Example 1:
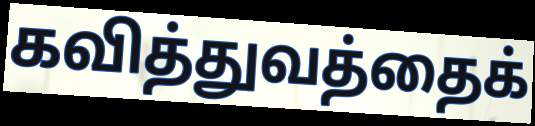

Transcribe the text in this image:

கவித்துவத்தைக்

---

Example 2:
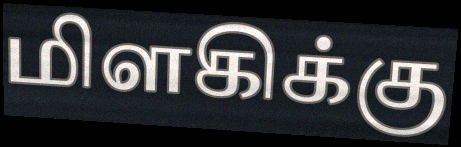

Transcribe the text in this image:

மிளகிக்கு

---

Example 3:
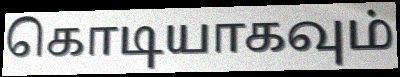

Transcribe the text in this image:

கொடியாகவும்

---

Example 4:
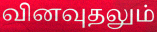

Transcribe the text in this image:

வினவுதலும்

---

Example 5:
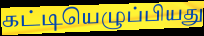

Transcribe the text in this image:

கட்டியெழுப்பியது